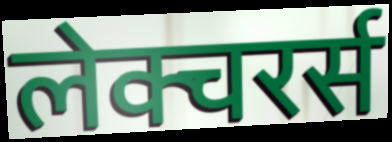
लेक्चरर्स